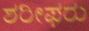
ಶರೀಫರು